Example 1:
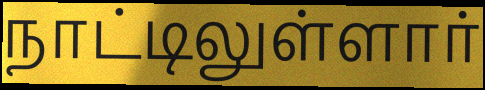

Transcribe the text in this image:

நாட்டிலுள்ளார்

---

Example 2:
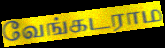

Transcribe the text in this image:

வேங்கடராம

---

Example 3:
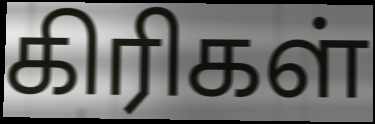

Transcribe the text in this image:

கிரிகள்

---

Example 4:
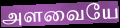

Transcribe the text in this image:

அளவையே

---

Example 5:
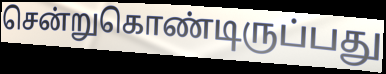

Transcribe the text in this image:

சென்றுகொண்டிருப்பது